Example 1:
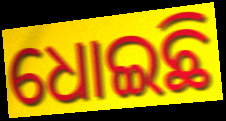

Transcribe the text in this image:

ଧୋଇଛି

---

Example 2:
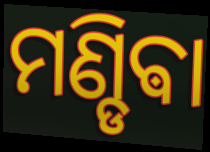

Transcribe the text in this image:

ମଣ୍ଡିଵା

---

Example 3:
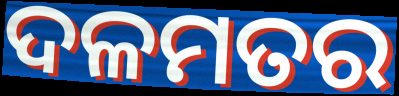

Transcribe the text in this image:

ଦଳମତର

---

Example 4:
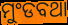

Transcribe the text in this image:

ମୁଂଡବଥା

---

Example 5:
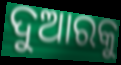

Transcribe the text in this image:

ଦୁଆରକୁ